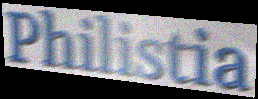
Philistia